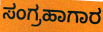
ಸಂಗ್ರಹಾಗಾರ